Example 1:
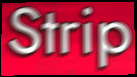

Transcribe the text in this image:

Strip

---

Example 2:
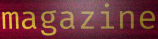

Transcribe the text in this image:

magazine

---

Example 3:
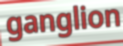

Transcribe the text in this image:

ganglion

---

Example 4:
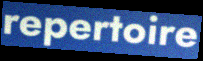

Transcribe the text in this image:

repertoire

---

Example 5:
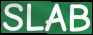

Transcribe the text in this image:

SLAB